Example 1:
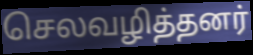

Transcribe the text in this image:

செலவழித்தனர்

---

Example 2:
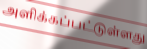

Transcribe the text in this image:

அளிக்கப்பட்டுள்ளது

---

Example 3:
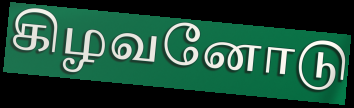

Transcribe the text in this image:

கிழவனோடு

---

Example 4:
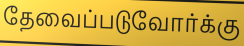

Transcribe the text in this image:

தேவைப்படுவோர்க்கு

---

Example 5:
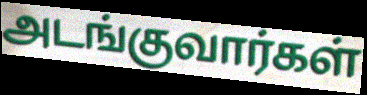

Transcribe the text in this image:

அடங்குவார்கள்